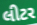
લીટર